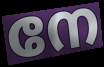
നേ